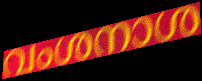
വംശനാശ